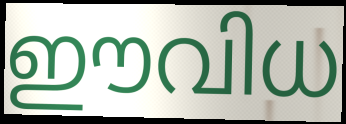
ഈവിധ